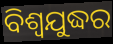
ବିଶ୍ୱଯୁଦ୍ଧର